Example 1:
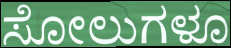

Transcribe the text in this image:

ಸೋಲುಗಳೂ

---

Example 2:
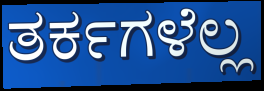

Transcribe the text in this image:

ತರ್ಕಗಳೆಲ್ಲ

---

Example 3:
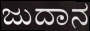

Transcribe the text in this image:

ಜುದಾನ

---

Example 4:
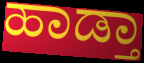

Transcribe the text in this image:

ಹಾಡ್ತಾ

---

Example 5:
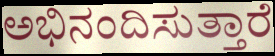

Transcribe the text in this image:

ಅಭಿನಂದಿಸುತ್ತಾರೆ